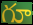
గూ